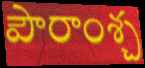
పౌరాంశ్చ